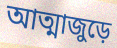
আত্মাজুড়ে